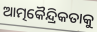
ଆତ୍ମକୈନ୍ଦ୍ରିକତାକୁ